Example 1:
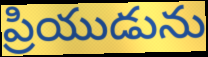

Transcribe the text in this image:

ప్రియుడును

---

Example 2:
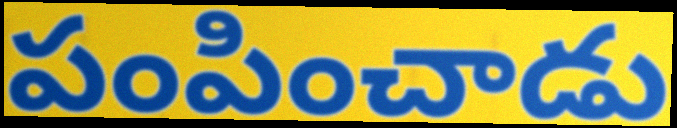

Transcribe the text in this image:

పంపించాడు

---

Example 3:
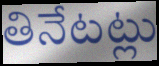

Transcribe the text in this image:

తినేటట్లు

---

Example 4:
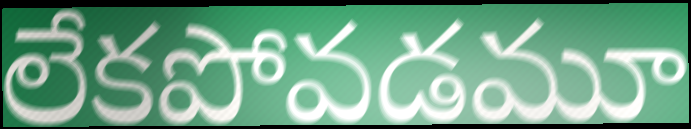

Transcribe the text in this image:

లేకపోవడమూ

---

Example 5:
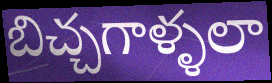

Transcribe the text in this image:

బిచ్చగాళ్ళలా